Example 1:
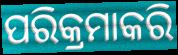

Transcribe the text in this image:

ପରିକ୍ରମାକରି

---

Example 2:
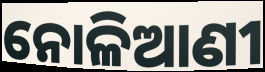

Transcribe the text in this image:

ନୋଳିଆଣୀ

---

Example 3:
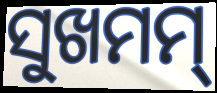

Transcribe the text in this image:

ସୁଖମମ୍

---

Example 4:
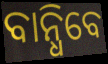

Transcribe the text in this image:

ବାନ୍ଧିବେ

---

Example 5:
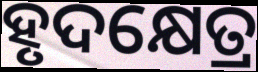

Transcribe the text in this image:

ହୃଦକ୍ଷେତ୍ର